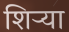
शिर्‍या